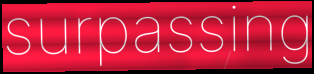
surpassing